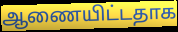
ஆணையிட்டதாக